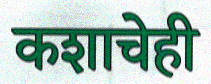
कशाचेही